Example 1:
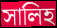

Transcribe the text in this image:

সালিহ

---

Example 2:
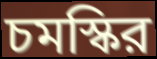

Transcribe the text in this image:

চমস্কির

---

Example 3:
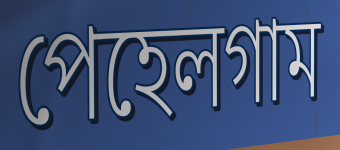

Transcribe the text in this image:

পেহেলগাম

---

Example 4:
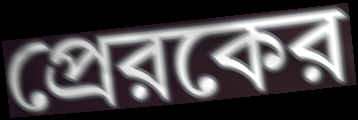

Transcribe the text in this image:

প্রেরকের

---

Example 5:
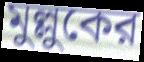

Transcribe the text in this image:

মুল্লুকের